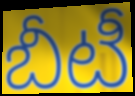
బీటీ